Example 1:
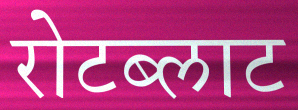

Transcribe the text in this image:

रोटब्लाट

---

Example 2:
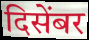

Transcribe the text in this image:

दिसेंबर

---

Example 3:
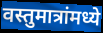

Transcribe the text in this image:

वस्तुमात्रांमध्ये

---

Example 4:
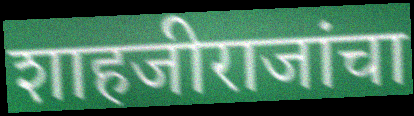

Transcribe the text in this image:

शाहजीराजांचा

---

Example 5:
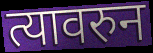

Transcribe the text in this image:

त्यावरुन